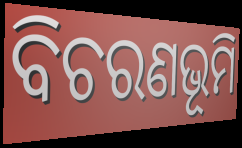
ବିଚରଣଭୂମି